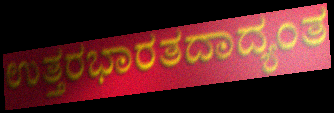
ಉತ್ತರಭಾರತದಾದ್ಯಂತ